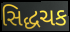
સિદ્ધચક